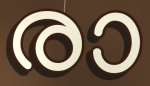
രാ